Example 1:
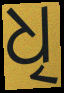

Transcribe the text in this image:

ଧି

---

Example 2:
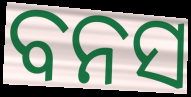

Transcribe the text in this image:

ବନସ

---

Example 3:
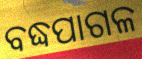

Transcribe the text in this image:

ବଦ୍ଧପାଗଳ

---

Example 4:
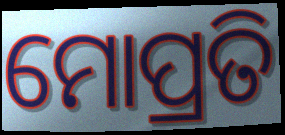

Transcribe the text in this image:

ମୋପ୍ରତି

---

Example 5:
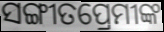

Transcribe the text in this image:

ସଙ୍ଗୀତପ୍ରେମୀଙ୍କ